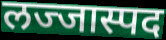
लज्जास्पद